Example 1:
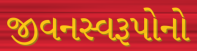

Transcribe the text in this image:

જીવનસ્વરૂપોનો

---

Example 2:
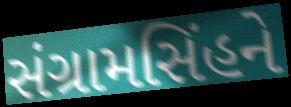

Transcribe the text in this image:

સંગ્રામસિંહને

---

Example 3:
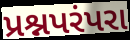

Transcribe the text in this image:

પ્રશ્નપરંપરા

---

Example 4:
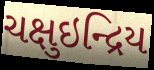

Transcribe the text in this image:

ચક્ષુઇન્દ્રિય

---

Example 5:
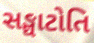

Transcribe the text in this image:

સઙ્ઘાટોતિ